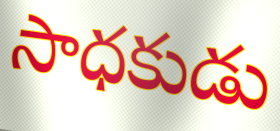
సాధకుడు